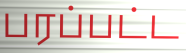
பரப்பட்ட